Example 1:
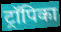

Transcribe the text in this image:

ट्रॉपिका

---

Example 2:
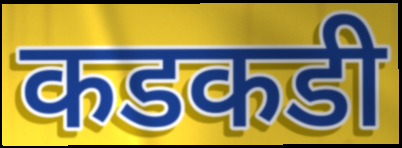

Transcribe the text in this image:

कडकडी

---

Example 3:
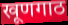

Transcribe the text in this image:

खूणगाठ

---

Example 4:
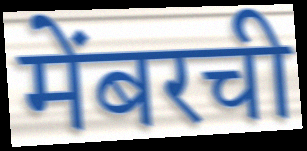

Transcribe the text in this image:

मेंबरची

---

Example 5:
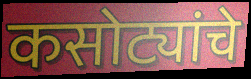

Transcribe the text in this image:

कसोट्यांचे